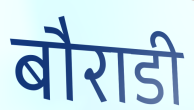
बौराडी